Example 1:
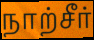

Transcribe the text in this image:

நாற்சீர்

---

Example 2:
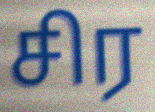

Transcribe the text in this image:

சிர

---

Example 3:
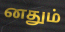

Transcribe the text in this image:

னதும்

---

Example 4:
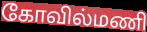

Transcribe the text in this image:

கோவில்மணி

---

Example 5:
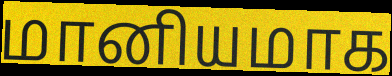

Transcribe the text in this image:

மானியமாக